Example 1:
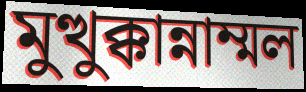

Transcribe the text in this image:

মুত্থুক্কান্নাম্মল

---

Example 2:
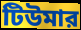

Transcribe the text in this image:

টিউমার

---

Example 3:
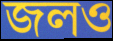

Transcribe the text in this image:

জলও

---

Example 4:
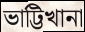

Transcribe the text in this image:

ভাট্টিখানা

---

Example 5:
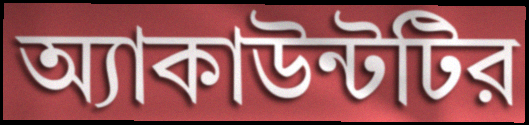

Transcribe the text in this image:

অ্যাকাউন্টটির